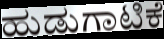
ಹುಡುಗಾಟಿಕೆ